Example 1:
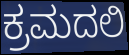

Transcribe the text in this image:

ಕ್ರಮದಲಿ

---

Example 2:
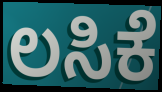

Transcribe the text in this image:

ಲಸಿಕೆ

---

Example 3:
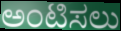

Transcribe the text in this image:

ಅಂಟಿಸಲು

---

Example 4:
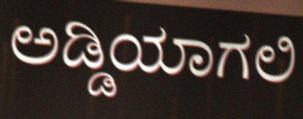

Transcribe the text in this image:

ಅಡ್ಡಿಯಾಗಲಿ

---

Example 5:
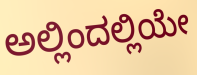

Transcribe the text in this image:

ಅಲ್ಲಿಂದಲ್ಲಿಯೇ